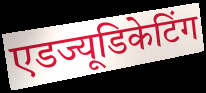
एडज्यूडिकेटिंग